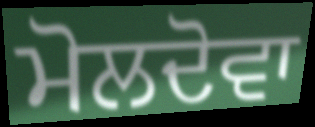
ਮੋਲਦੋਵਾ